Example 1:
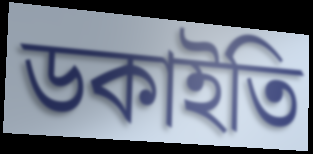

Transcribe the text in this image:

ডকাইতি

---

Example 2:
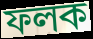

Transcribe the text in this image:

ফলক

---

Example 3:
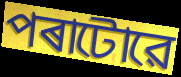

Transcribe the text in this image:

পৰাটোৱে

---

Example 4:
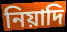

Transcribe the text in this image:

নিয়াদি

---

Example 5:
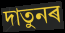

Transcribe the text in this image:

দাতুনৰ